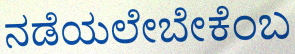
ನಡೆಯಲೇಬೇಕೆಂಬ